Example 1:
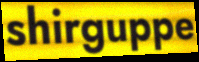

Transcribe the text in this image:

shirguppe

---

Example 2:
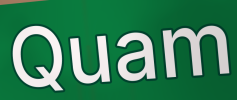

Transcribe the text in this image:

Quam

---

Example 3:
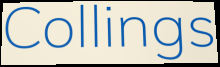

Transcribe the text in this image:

Collings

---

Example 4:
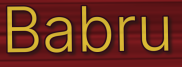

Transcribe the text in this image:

Babru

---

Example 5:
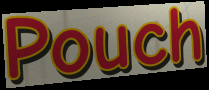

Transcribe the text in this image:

Pouch